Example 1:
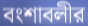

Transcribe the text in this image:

বংশাবলীর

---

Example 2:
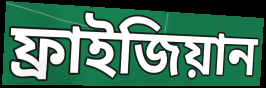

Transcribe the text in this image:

ফ্রাইজিয়ান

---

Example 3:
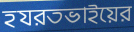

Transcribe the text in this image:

হযরতভাইয়ের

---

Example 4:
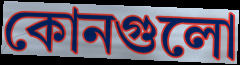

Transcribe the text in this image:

কোনগুলো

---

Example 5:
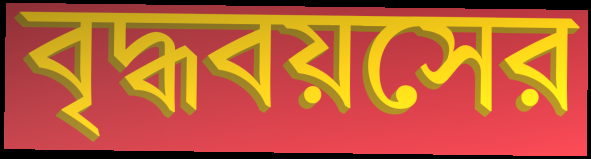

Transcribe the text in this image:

বৃদ্ধবয়সের